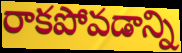
రాకపోవడాన్ని